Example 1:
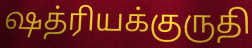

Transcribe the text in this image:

ஷத்ரியக்குருதி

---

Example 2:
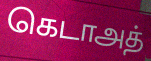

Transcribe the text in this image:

கெடாஅத்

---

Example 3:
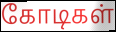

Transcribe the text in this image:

கோடிகள்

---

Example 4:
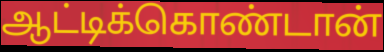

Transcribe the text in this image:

ஆட்டிக்கொண்டான்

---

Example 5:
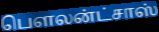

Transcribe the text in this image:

பௌலன்ட்சாஸ்